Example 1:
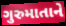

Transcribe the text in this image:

ગુરુમાતાને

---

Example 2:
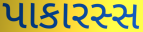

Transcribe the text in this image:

પાકારસ્સ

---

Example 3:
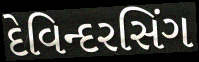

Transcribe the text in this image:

દેવિન્દરસિંગ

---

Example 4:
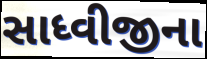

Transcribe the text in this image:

સાધ્વીજીના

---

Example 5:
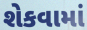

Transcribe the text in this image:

શેકવામાં